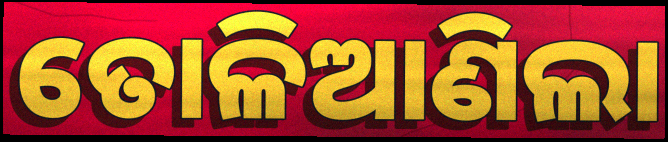
ତୋଳିଆଣିଲା